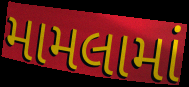
મામલામાં